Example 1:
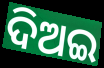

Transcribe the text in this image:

ଦିଅଇ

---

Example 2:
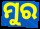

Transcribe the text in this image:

ମୁର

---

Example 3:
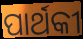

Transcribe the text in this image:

ପାର୍ଥକୀ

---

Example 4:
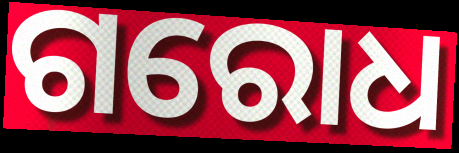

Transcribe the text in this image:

ଗରୋଧ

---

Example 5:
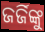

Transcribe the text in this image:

ଜର୍ଜିଙ୍କୁ